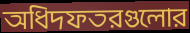
অধিদফতরগুলোর